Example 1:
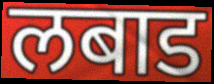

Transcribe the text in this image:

लबाड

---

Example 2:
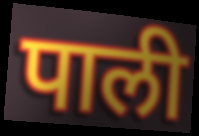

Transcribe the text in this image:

पाली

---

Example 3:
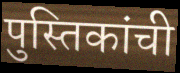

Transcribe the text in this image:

पुस्तिकांची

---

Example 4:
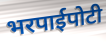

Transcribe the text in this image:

भरपाईपोटी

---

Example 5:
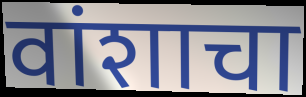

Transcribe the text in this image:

वांशाचा